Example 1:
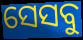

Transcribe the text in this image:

ସେସବୁ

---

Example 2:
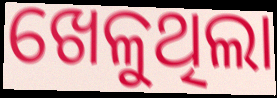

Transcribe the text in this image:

ଖେଳୁଥିଲା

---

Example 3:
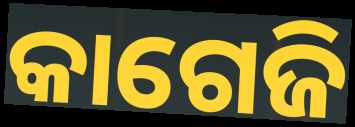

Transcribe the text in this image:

କାଗେଜି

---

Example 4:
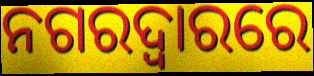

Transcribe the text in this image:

ନଗରଦ୍ୱାରରେ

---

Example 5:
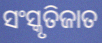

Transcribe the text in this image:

ସଂସ୍କୃତିଜାତ